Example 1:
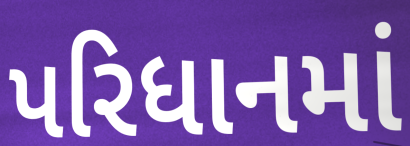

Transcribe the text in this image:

પરિધાનમાં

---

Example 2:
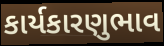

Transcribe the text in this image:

કાર્યકારણુભાવ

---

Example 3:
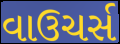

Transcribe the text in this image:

વાઉચર્સ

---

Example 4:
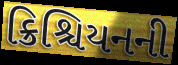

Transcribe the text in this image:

ક્રિશ્ચિયનની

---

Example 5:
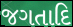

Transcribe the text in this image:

જગતાદિ